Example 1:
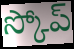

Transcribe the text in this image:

స్కోప్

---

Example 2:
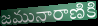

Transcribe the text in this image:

జమునారాణికి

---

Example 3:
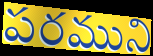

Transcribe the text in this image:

పరముని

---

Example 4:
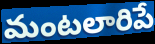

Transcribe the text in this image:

మంటలారిపే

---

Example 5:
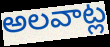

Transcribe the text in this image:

అలవాట్ల